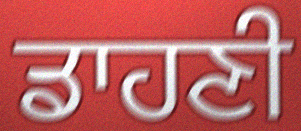
ਡਾਹਣੀ